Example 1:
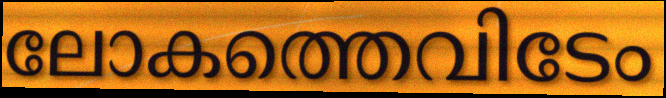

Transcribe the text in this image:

ലോകത്തെവിടേം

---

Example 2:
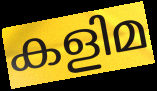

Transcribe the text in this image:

കളിമ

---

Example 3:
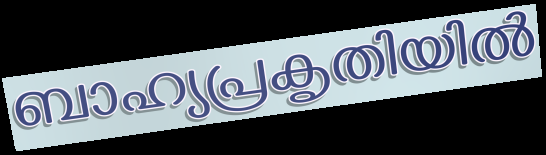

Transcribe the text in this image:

ബാഹ്യപ്രകൃതിയിൽ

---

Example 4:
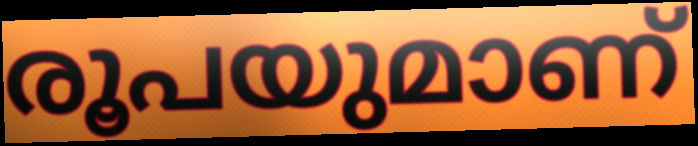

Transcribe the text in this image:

രൂപയുമാണ്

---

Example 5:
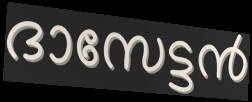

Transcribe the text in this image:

ദാസേട്ടൻ